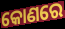
କୋଣରେ